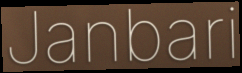
Janbari